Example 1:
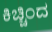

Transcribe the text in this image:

ಕಿಚ್ಚಿಂದ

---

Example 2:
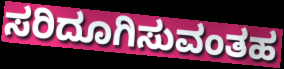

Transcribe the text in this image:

ಸರಿದೂಗಿಸುವಂತಹ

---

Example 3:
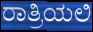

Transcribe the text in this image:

ರಾತ್ರಿಯಲಿ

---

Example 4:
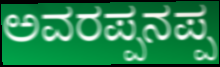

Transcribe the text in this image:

ಅವರಪ್ಪನಪ್ಪ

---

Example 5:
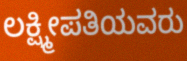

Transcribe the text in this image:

ಲಕ್ಷ್ಮೀಪತಿಯವರು